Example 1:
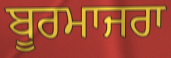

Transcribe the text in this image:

ਬੂਰਮਾਜਰਾ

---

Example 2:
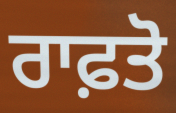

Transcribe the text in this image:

ਰਾਫ਼ਤੋ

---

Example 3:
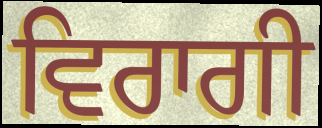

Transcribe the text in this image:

ਵਿਰਾਗੀ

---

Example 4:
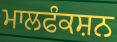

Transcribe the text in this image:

ਮਾਲਫੰਕਸ਼ਨ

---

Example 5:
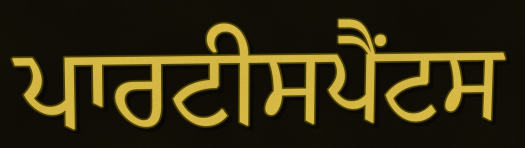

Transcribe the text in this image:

ਪਾਰਟੀਸਪੈਂਟਸ